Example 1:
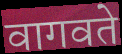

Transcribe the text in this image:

वागवते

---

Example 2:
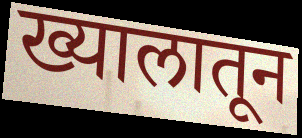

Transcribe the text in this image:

ख्यालातून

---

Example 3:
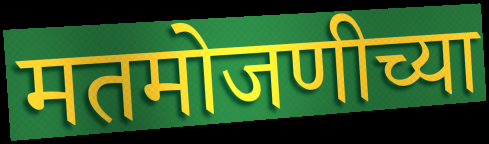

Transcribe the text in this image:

मतमोजणीच्या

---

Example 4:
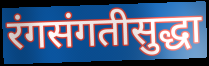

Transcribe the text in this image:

रंगसंगतीसुद्धा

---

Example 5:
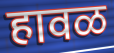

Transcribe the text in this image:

हावळ